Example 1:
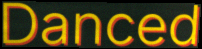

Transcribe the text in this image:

Danced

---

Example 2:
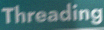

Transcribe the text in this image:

Threading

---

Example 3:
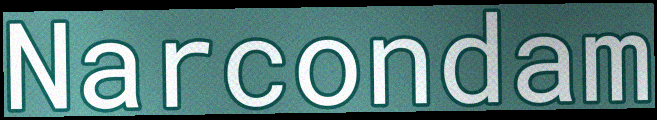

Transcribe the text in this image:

Narcondam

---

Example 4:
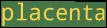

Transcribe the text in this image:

placenta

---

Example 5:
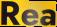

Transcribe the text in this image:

Rea